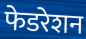
फेडरेशन